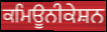
ਕਮਿਊਨੀਕੇਸ਼ਨ